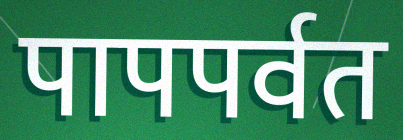
पापपर्वत